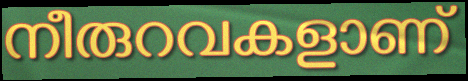
നീരുറവകളാണ്